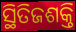
ସ୍ଥିତିଜଶକ୍ତି